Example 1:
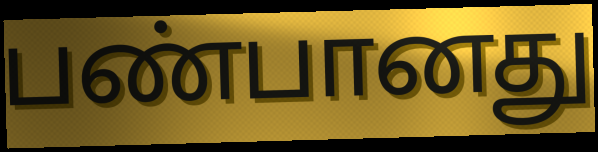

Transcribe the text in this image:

பண்பானது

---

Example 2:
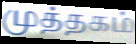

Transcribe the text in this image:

முத்தகம்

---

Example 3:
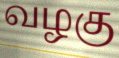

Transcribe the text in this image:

வழகு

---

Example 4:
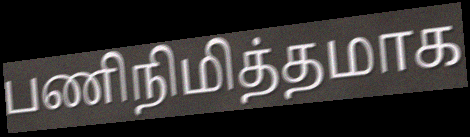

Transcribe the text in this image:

பணிநிமித்தமாக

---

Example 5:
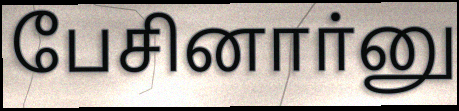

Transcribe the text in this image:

பேசினார்னு